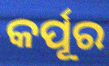
କର୍ପୂର